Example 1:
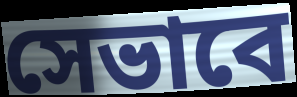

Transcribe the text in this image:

সেভাবে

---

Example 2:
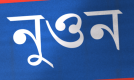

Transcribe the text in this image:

নুওন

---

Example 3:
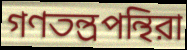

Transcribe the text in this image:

গণতন্ত্রপন্থিরা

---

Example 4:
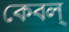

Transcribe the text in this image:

কেবল্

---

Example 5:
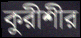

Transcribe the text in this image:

কুরীশীর